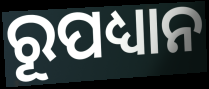
ରୂପଧ୍ୟାନ